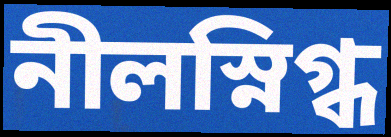
নীলস্নিগ্ধ